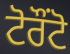
ਟੋਰੌੰਟੋ